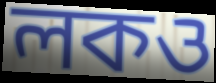
লকও